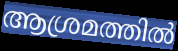
ആശ്രമത്തിൽ